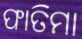
ଫାତିମା